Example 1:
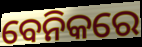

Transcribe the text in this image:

ବେନିକରେ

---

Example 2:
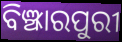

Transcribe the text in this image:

ବିଞ୍ଝାରପୁରୀ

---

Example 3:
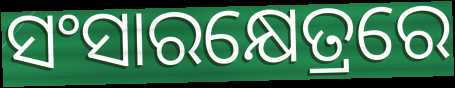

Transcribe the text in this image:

ସଂସାରକ୍ଷେତ୍ରରେ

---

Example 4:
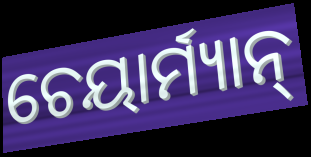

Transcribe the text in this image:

ଚେୟାର୍ମ୍ୟାନ୍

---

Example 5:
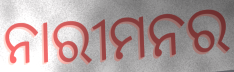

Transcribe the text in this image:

ନାରୀମନର